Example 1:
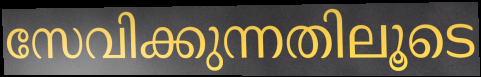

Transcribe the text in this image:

സേവിക്കുന്നതിലൂടെ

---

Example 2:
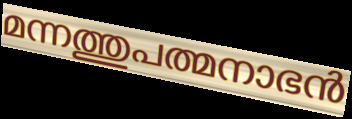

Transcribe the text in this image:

മന്നത്തുപത്മനാഭൻ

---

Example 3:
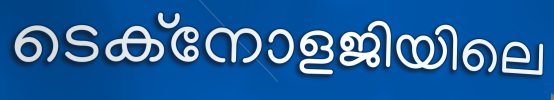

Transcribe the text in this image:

ടെക്നോളജിയിലെ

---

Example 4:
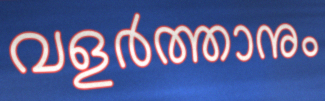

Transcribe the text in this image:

വളർത്താനും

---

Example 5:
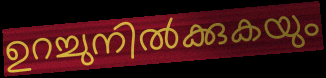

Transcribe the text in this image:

ഉറച്ചുനിൽക്കുകയും